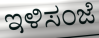
ಇಳಿಸಂಜೆ